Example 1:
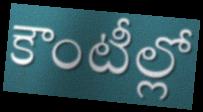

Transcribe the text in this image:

కౌంటీల్లో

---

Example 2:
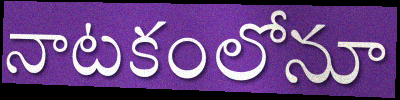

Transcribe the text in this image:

నాటకంలోనూ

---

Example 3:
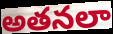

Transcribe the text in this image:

అతనలా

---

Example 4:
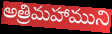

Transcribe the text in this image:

అత్రిమహాముని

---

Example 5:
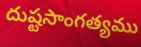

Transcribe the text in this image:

దుష్టసాంగత్యము